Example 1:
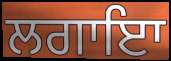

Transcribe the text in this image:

ਲਗਾਇਾ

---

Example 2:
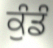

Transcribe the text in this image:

ਕੁੰਡੰ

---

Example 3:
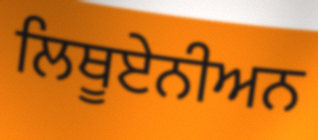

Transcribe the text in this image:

ਲਿਥੂਏਨੀਅਨ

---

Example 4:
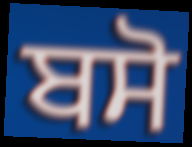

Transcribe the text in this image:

ਬਸੋ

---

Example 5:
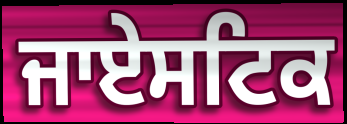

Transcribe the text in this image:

ਜਾਏਸਟਿਕ